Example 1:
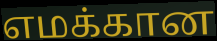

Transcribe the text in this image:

எமக்கான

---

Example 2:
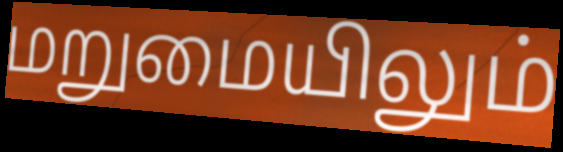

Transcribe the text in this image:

மறுமையிலும்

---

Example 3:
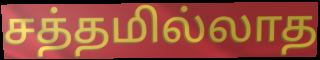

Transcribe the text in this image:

சத்தமில்லாத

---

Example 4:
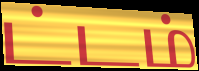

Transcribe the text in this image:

ட்டம்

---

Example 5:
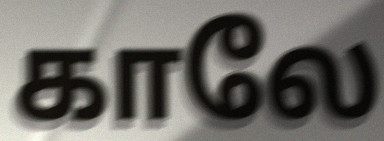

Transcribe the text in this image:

காலே